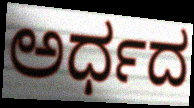
ಅರ್ಧದ